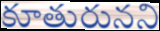
కూతురునని